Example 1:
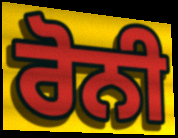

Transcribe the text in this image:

ਰੋਨੀ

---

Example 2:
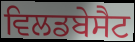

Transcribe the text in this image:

ਵਿਲਡਬੇਸੈਟ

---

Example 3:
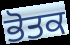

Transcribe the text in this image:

ਭੋਤਕ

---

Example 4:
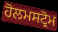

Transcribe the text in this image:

ਹੋਲਮਸਟ੍ਰੋਮ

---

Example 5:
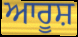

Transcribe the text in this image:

ਆਰੂਸ਼